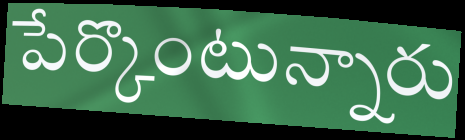
పేర్కొంటున్నారు